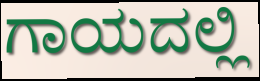
ಗಾಯದಲ್ಲಿ